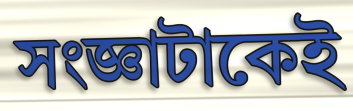
সংজ্ঞাটাকেই